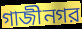
গাজীনগর